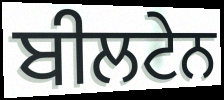
ਬੀਲਟੇਨ